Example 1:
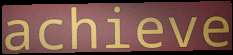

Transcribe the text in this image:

achieve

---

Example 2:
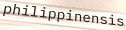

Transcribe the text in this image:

philippinensis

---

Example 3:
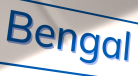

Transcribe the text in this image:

Bengal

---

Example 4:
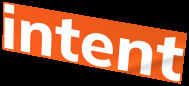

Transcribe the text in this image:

intent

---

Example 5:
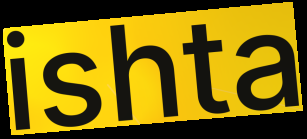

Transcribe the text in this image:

ishta